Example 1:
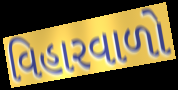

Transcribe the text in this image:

વિહારવાળો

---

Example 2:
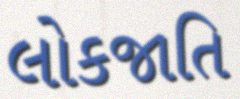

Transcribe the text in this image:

લોકજાતિ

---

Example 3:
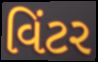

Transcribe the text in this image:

વિંટર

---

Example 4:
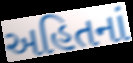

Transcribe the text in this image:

અહિતનાં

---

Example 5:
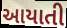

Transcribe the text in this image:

આયાતી